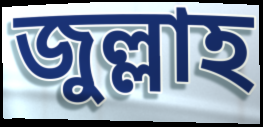
জুল্লাহ